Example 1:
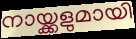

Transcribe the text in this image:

നായ്ക്കളുമായി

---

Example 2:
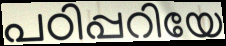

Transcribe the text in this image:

പഠിപ്പറിയേ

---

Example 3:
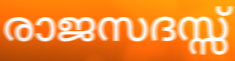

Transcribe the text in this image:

രാജസദസ്സ്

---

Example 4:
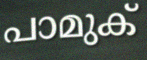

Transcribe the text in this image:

പാമുക്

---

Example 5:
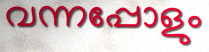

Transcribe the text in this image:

വന്നപ്പോളും